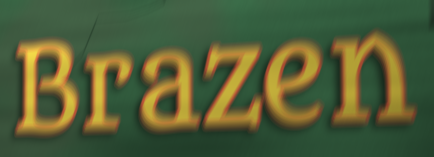
Brazen